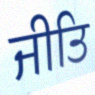
ਜੀਤਿ